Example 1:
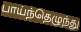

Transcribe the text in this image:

பாய்ந்தெழுந்து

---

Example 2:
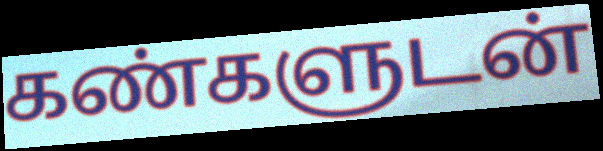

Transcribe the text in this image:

கண்களுடன்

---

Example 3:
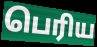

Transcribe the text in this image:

பெரிய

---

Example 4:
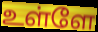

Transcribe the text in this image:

உள்ளே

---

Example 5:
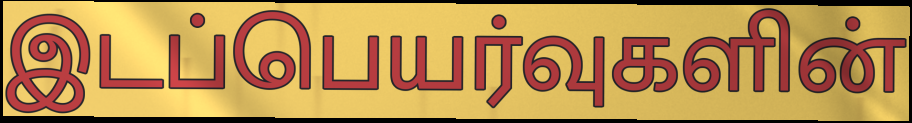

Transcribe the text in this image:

இடப்பெயர்வுகளின்